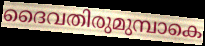
ദൈവതിരുമുമ്പാകെ